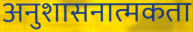
अनुशासनात्मकता